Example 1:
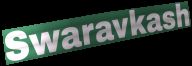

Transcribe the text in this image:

Swaravkash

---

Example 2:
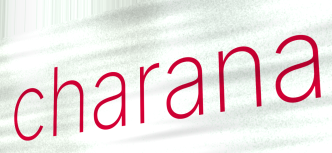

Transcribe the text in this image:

charana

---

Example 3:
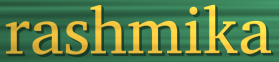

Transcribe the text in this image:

rashmika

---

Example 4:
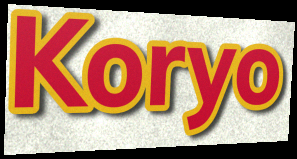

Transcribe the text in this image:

Koryo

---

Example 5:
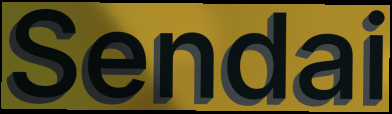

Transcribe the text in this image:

Sendai